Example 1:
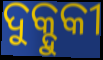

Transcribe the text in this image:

ଦୁକ୍ଦୁକୀ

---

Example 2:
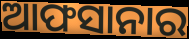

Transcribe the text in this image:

ଆଫସାନାର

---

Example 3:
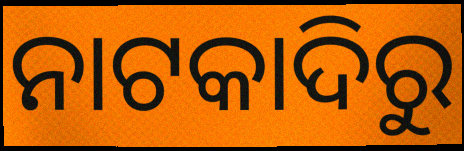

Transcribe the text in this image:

ନାଟକାଦିରୁ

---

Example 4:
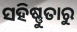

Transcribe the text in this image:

ସହିଷ୍ଣୁତାରୁ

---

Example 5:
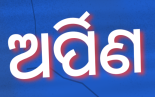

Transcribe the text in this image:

ଅର୍ପିଣ